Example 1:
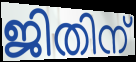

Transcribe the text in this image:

ജിതിന്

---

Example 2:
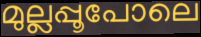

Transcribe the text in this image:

മുല്ലപ്പൂപോലെ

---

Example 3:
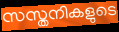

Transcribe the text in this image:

സസ്തനികളുടെ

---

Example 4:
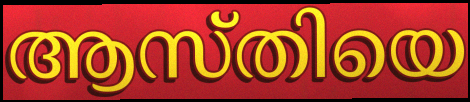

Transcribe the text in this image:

ആസ്തിയെ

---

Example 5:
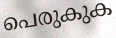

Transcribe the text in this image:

പെരുകുക